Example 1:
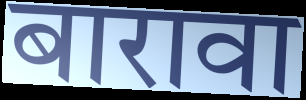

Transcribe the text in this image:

बारावा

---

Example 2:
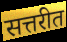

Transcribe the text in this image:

सत्तरीत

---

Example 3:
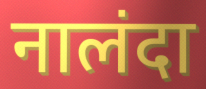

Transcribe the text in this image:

नालंदा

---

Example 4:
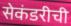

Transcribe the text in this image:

सेकंडरीची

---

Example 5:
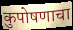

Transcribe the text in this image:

कुपोषणाचा